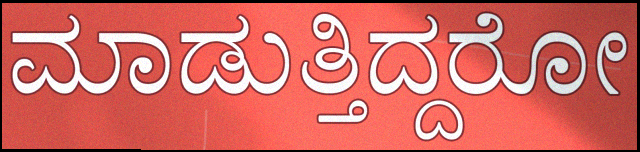
ಮಾಡುತ್ತಿದ್ದರೋ